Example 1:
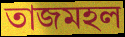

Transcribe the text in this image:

তাজমহল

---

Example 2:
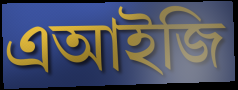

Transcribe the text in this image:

এআইজি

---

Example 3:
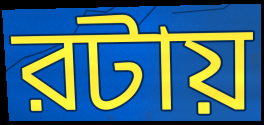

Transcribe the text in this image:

রটায়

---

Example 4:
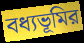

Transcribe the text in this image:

বধ্যভূমির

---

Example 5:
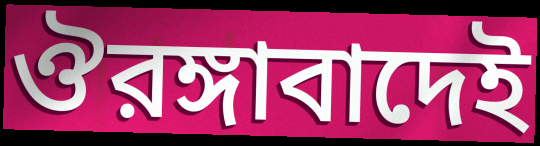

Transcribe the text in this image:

ঔরঙ্গাবাদেই